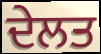
ਦੇਲਤ